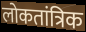
लोकतांत्रिक